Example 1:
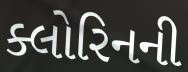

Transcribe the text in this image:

ક્લોરિનની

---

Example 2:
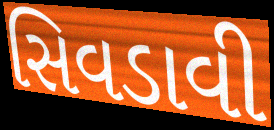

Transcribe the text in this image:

સિવડાવી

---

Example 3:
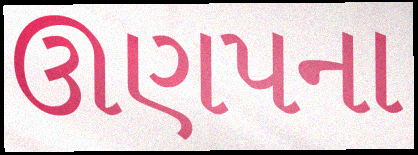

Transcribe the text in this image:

ઊણપના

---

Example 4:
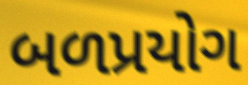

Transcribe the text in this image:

બળપ્રયોગ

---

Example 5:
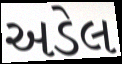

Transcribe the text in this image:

અડેલ